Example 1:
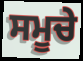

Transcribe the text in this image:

ਸਮੂਚੇ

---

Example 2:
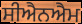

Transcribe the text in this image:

ਸੀਐਨਐਮ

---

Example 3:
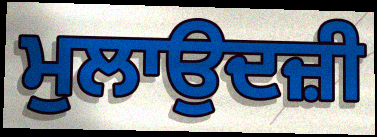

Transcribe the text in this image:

ਮੁਲਾਉਦਜ਼ੀ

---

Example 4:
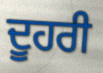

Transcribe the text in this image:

ਦੂਹਰੀ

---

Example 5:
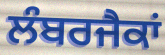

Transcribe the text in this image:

ਲੰਬਰਜੈਕਾਂ